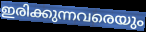
ഇരിക്കുന്നവരെയും